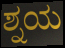
ಶ್ನಯ